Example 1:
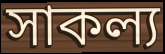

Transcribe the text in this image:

সাকল্য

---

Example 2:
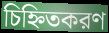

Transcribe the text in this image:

চিহ্নিতকরণ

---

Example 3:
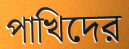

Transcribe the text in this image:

পাখিদের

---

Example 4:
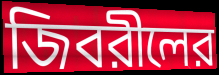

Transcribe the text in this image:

জিবরীলের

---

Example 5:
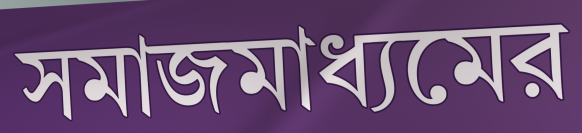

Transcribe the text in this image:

সমাজমাধ্যমের